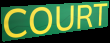
COURT